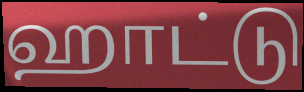
ஹாட்டு